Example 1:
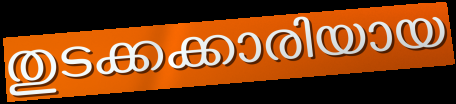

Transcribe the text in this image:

തുടക്കക്കാരിയായ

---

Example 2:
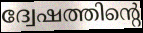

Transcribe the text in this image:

ദ്വേഷത്തിന്റെ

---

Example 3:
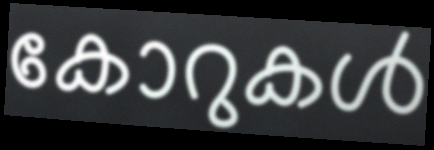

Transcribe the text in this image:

കോറുകൾ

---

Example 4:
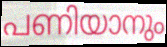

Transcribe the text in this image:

പണിയാനും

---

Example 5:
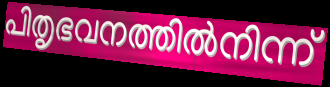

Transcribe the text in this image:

പിതൃഭവനത്തിൽനിന്ന്